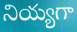
నియ్యగా